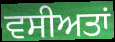
ਵਸੀਅਤਾਂ